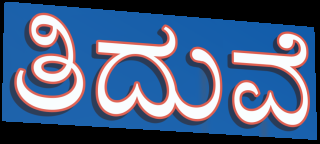
ತಿದುವೆ